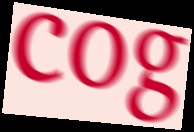
cog